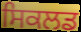
ਸਿਕਲਡ